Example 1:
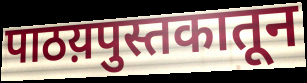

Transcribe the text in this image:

पाठय़पुस्तकातून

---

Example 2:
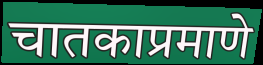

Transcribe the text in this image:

चातकाप्रमाणे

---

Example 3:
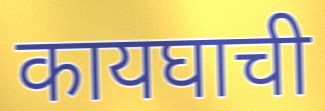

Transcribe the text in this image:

कायघाची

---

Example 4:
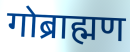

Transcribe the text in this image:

गोब्राह्मण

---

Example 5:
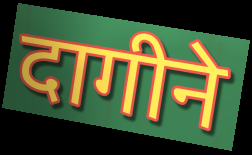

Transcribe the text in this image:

दागीने